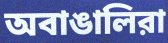
অবাঙালিরা